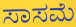
ಸಾಸಮೆ